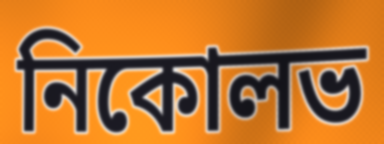
নিকোলভ